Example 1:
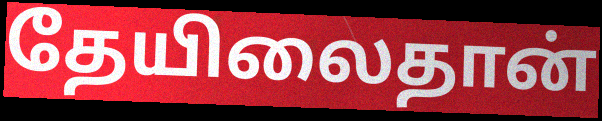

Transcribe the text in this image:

தேயிலைதான்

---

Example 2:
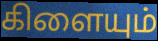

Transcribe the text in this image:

கிளையும்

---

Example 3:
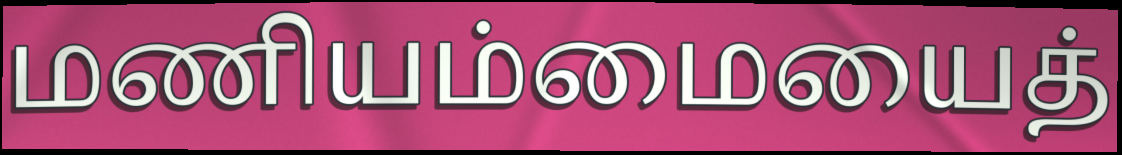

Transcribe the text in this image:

மணியம்மையைத்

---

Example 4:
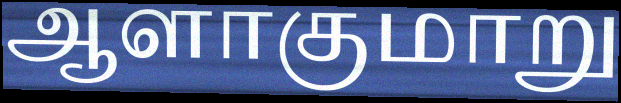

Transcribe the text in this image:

ஆளாகுமாறு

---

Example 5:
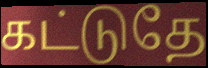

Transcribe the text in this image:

கட்டுதே